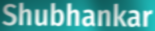
Shubhankar